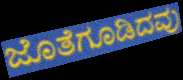
ಜೊತೆಗೂಡಿದವು